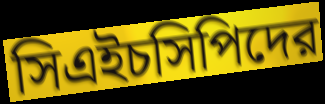
সিএইচসিপিদের